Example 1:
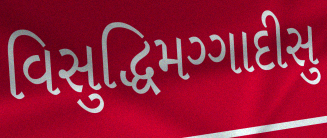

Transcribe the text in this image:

વિસુદ્ધિમગ્ગાદીસુ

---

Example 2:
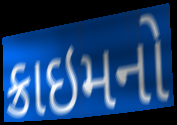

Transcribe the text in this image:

ક્રાઇમનો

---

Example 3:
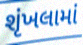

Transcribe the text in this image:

શૃંખલામાં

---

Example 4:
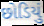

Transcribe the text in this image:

છોડિયું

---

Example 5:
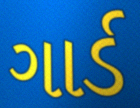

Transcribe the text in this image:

ગાર્ડ